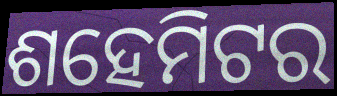
ଶହେମିଟର